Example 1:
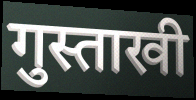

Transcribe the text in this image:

गुस्ताखी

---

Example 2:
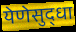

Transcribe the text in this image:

येणेसुद्धा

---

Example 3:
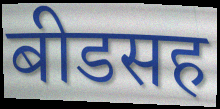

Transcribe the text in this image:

बीडसह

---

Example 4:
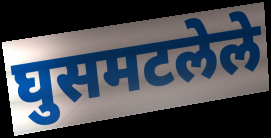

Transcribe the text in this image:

घुसमटलेले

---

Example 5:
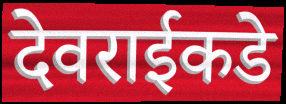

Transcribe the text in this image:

देवराईकडे